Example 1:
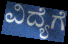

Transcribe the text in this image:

ವಿದ್ಯೆಗೆ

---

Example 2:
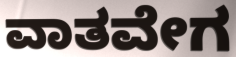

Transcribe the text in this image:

ವಾತವೇಗ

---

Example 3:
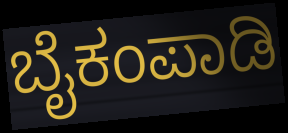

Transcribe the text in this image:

ಬೈಕಂಪಾಡಿ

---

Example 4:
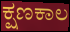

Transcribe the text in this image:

ಕ್ಷಣಕಾಲ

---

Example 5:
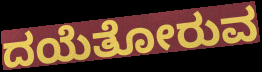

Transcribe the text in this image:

ದಯೆತೋರುವ